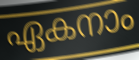
ഏകനാം